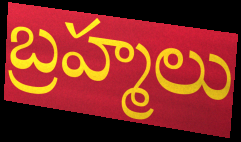
బ్రహ్మలు